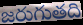
జరుగుతది